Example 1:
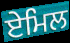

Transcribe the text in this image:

ਏਮਿਲ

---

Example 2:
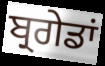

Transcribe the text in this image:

ਬ੍ਰਗੇਡਾਂ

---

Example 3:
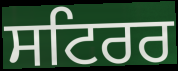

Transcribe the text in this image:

ਸਟਿਰਰ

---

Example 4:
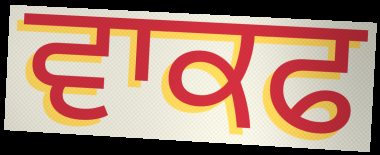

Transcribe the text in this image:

ਵਾਕਫ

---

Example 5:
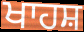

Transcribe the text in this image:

ਖਾਹਸ਼